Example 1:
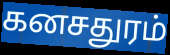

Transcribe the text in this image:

கனசதுரம்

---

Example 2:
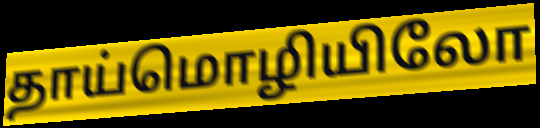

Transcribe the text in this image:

தாய்மொழியிலோ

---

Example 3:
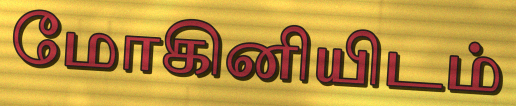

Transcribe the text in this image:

மோகினியிடம்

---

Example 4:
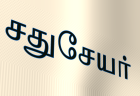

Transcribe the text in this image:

சதுசேயர்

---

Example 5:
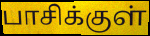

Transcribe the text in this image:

பாசிக்குள்